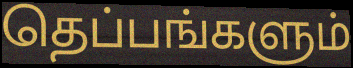
தெப்பங்களும்